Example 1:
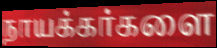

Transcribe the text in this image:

நாயக்கர்களை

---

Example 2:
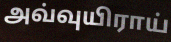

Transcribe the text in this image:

அவ்வுயிராய்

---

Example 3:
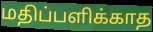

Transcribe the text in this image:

மதிப்பளிக்காத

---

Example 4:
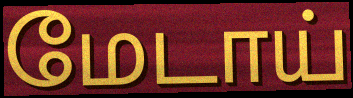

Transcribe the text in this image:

மேடாய்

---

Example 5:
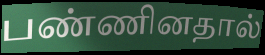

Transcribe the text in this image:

பண்ணினதால்